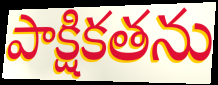
పాక్షికతను